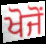
ਖੋਜੋਂ